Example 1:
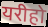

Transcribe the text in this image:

यरीहो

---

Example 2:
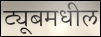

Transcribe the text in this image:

ट्यूबमधील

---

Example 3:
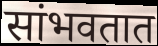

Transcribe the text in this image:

सांभवतात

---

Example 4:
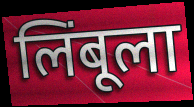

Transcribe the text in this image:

लिंबूला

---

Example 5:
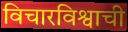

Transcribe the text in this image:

विचारविश्वाची